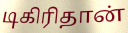
டிகிரிதான்